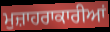
ਮੁਜ਼ਾਹਰਾਕਾਰੀਆਂ